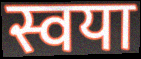
स्वया